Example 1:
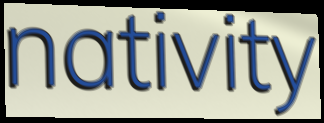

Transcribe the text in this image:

nativity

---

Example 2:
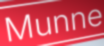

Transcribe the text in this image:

Munne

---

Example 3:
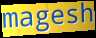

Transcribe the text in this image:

magesh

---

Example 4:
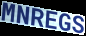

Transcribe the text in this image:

MNREGS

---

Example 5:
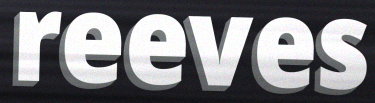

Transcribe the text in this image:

reeves